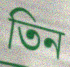
তিন